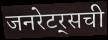
जनरेटर्सची